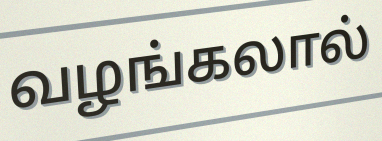
வழங்கலால்